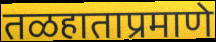
तळहाताप्रमाणे